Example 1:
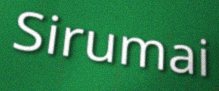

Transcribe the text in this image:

Sirumai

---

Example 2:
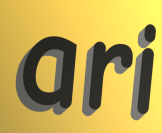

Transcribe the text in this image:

ari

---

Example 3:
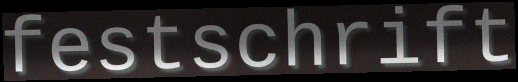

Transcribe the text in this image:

festschrift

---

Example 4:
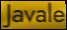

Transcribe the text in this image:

Javale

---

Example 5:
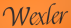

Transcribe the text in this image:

Wexler